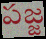
పజ్జ